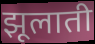
झूलाती